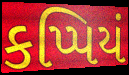
કપ્પિયં